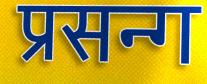
प्रसन्ग